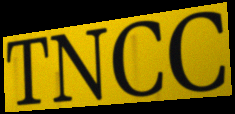
TNCC